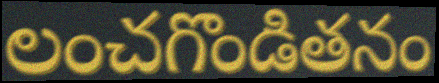
లంచగొండితనం